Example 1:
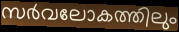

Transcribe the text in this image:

സർവലോകത്തിലും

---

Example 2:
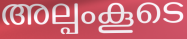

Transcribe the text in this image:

അല്പംകൂടെ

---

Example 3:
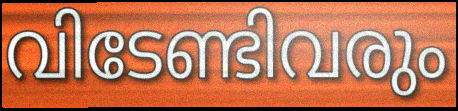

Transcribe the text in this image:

വിടേണ്ടിവരും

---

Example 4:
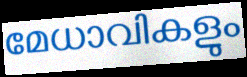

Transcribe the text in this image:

മേധാവികളും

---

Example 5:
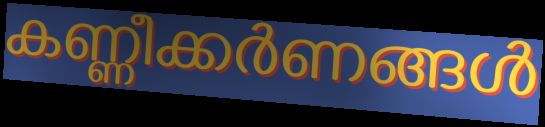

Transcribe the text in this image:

കണ്ണീക്കർണങ്ങൾ